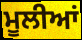
ਮੂਲੀਆਂ